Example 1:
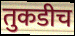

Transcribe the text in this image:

तुकडीच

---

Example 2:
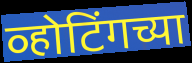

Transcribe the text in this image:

व्होटिंगच्या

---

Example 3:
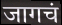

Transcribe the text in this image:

जागचं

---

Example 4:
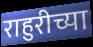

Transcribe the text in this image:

राहुरीच्या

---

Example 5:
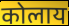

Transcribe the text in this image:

कोलाय